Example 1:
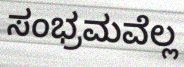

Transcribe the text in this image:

ಸಂಭ್ರಮವೆಲ್ಲ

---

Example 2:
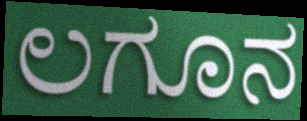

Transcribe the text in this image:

ಲಗೂನ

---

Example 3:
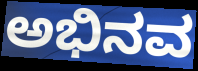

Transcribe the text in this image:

ಅಭಿನವ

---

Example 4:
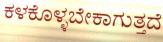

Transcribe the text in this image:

ಕಳಕೊಳ್ಳಬೇಕಾಗುತ್ತದೆ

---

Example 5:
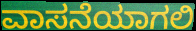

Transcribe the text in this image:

ವಾಸನೆಯಾಗಲಿ